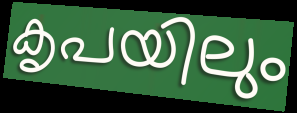
കൃപയിലും